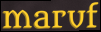
maruf